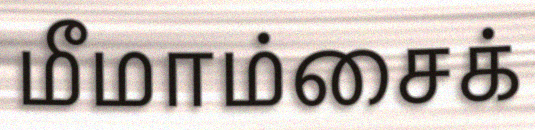
மீமாம்சைக்